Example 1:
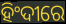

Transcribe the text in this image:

ହିଂଦୀରେ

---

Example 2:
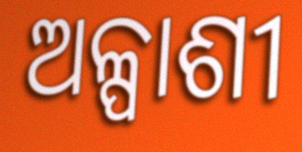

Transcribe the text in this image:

ଅଳ୍ପାଶୀ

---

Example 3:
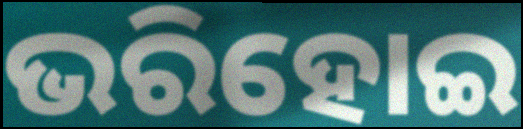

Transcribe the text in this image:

ଭରିହୋଇ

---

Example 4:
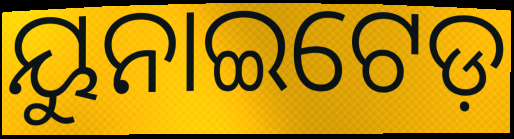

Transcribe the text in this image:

ୟୁନାଇଟେଡ଼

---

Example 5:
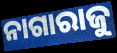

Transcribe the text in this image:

ନାଗାରାଜୁ